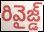
రివైజ్డ్